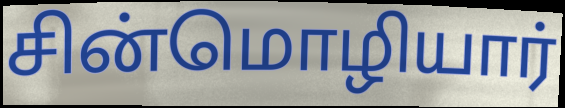
சின்மொழியார்